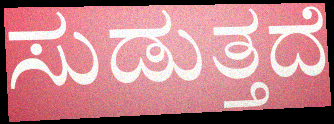
ಸುಡುತ್ತದೆ